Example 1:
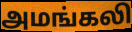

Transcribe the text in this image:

அமங்கலி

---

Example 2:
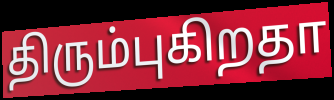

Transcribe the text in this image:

திரும்புகிறதா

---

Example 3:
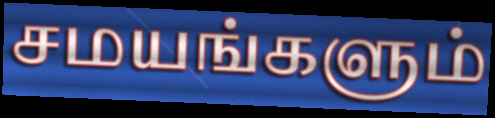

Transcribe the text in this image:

சமயங்களும்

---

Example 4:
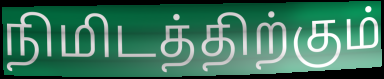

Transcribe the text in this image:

நிமிடத்திற்கும்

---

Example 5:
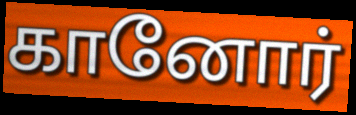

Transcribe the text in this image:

கானோர்